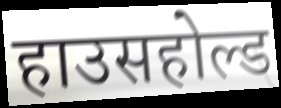
हाउसहोल्ड